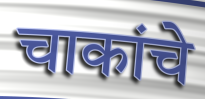
चाकांचे